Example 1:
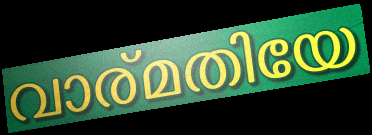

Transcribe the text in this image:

വാര്മതിയേ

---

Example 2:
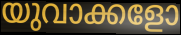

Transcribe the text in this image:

യുവാക്കളോ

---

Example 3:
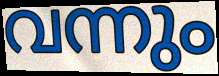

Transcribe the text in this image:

വന്നും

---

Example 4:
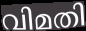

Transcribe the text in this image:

വിമതി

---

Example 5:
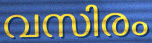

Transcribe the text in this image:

വസിരം